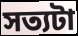
সত্যটা